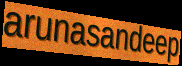
arunasandeep